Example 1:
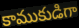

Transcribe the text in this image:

కాముకుడిగా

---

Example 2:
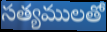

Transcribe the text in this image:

సత్యములతో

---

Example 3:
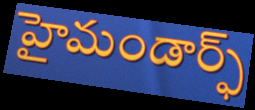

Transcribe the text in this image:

హైమండార్ఫ్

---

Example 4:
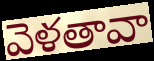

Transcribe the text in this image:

వెళతావా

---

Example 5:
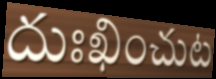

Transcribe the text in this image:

దుఃఖించుట